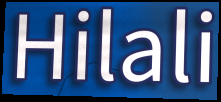
Hilali